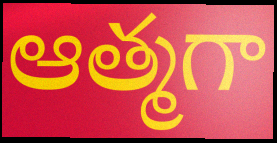
ఆత్మగా